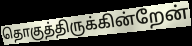
தொகுத்திருக்கின்றேன்